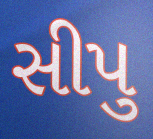
સીપુ